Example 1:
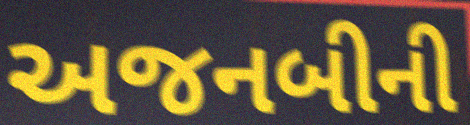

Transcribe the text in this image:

અજનબીની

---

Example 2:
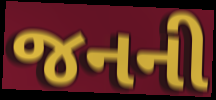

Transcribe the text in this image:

જનની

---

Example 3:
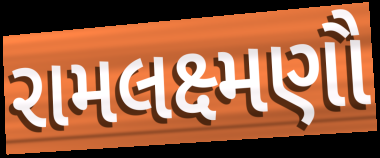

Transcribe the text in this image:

રામલક્ષ્મણૌ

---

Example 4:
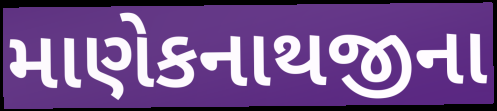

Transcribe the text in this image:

માણેકનાથજીના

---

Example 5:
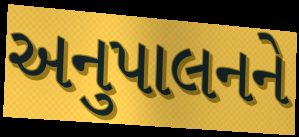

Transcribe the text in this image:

અનુપાલનને